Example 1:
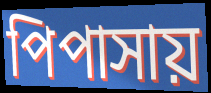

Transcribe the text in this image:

পিপাসায়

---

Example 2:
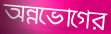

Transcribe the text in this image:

অন্নভোগের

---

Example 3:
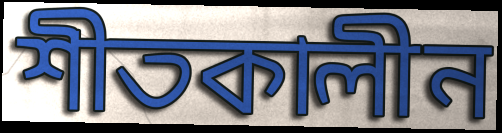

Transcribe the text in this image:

শীতকালীন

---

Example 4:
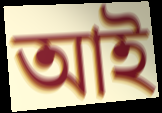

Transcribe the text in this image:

আই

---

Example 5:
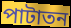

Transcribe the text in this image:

পাটাতন